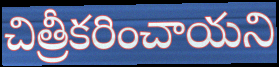
చిత్రీకరించాయని